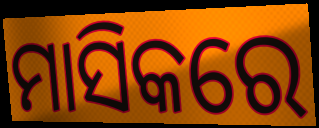
ମାସିକରେ